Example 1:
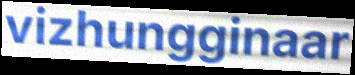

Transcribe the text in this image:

vizhungginaar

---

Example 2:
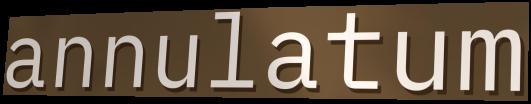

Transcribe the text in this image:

annulatum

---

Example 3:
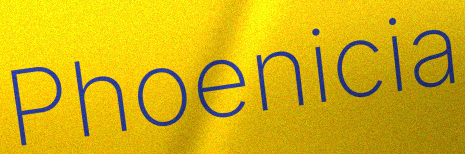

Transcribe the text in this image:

Phoenicia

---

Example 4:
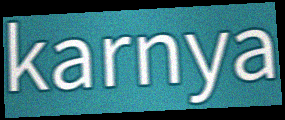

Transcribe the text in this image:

karnya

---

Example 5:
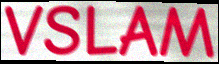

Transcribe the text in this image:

VSLAM